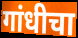
गांधीचा